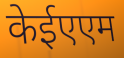
केईएएम